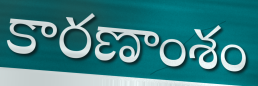
కారణాంశం